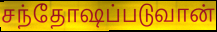
சந்தோஷப்படுவான்